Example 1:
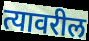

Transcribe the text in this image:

त्यावरील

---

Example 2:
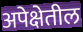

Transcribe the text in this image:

अपेक्षेतील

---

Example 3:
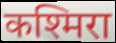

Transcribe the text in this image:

कश्मिरा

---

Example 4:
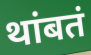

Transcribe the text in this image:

थांबतं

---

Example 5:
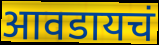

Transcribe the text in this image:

आवडायचं